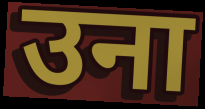
उना